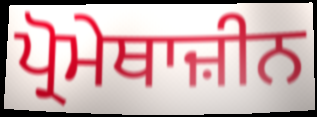
ਪ੍ਰੋਮੇਥਾਜ਼ੀਨ